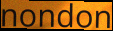
nondon